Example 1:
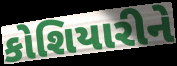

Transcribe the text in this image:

કોશિયારીને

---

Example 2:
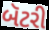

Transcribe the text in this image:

બૅટરી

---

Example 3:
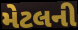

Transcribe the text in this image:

મેટલની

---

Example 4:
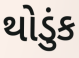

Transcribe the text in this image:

થોડુંક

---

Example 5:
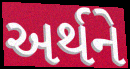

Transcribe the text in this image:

અર્થને